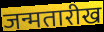
जन्मतारीख